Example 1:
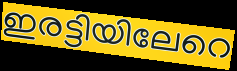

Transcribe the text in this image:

ഇരട്ടിയിലേറെ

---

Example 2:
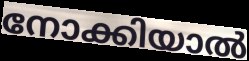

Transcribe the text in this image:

നോക്കിയാൽ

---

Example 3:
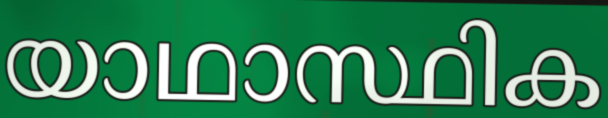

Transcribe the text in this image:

യാഥാസ്ഥിക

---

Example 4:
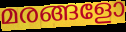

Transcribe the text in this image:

മരങ്ങളോ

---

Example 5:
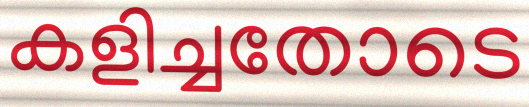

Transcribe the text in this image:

കളിച്ചതോടെ